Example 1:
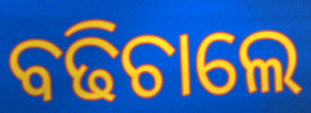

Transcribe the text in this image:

ବଢିଚାଲେ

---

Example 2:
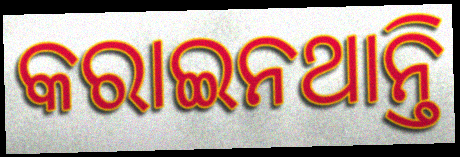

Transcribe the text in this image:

କରାଇନଥାନ୍ତି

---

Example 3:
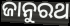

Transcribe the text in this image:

ଜାନୁରଥ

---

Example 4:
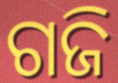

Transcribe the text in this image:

ଗଜି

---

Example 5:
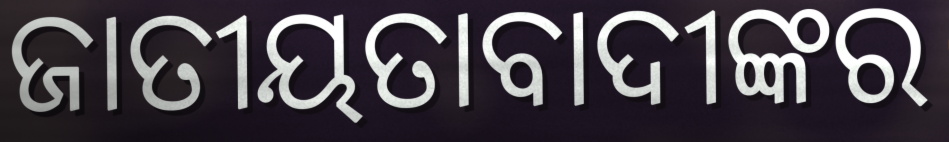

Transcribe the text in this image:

ଜାତୀୟତାବାଦୀଙ୍କର